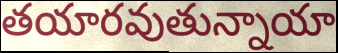
తయారవుతున్నాయా